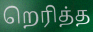
றெரித்த